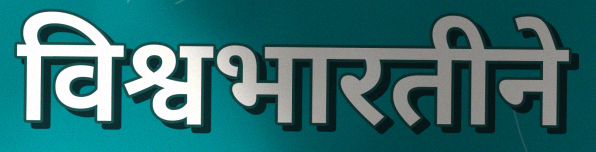
विश्वभारतीने